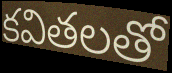
కవితలతో